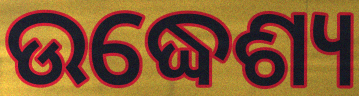
ଉଦ୍ଧେଶ୍ୟ